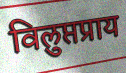
विलुप्तप्राय